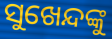
ସୁଖେନ୍ଦଙ୍କୁ